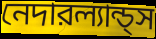
নেদারল্যান্ড্‌স